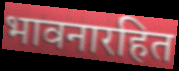
भावनारहित